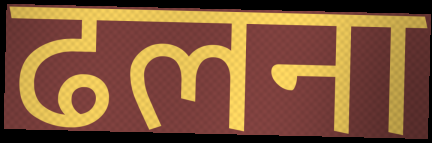
ढलना